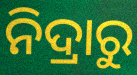
ନିଦ୍ରାରୁ